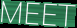
MEET